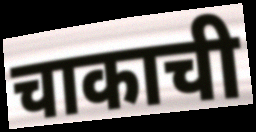
चाकाची